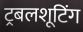
ट्रबलशूटिंग